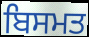
ਬਿਸਮਤ